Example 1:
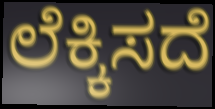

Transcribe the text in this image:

ಲೆಕ್ಕಿಸದೆ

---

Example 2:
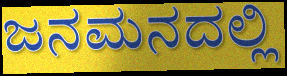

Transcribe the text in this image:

ಜನಮನದಲ್ಲಿ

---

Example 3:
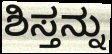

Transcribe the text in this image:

ಶಿಸ್ತನ್ನು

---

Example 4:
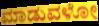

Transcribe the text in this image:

ಮಾಡುವಳೋ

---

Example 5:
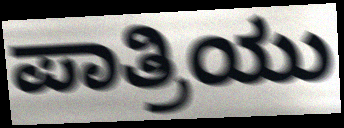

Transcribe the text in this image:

ಪಾತ್ರಿಯು